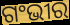
ଗଂଭୀର